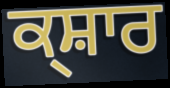
ਕ੍ਸ਼ਾਰ